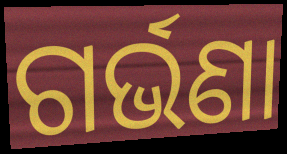
ଗର୍ଭଣା